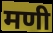
मणी